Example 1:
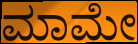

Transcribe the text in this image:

ಮಾಮೇ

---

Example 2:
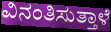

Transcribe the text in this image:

ವಿನಂತಿಸುತ್ತಾಳೆ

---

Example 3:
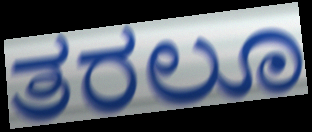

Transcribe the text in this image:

ತರಲೂ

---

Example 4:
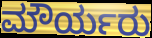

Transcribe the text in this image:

ಮೌರ್ಯರು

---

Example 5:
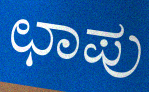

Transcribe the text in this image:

ಛಾಪು